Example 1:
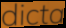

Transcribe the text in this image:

dicta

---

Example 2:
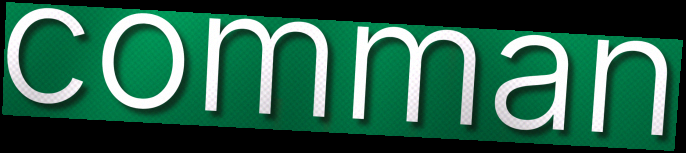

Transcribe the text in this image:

comman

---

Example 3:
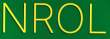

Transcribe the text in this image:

NROL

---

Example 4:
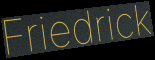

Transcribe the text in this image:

Friedrick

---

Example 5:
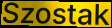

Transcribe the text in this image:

Szostak